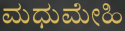
ಮಧುಮೇಹಿ